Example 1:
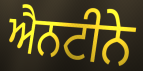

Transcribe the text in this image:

ਐਨਟੀਨੇ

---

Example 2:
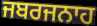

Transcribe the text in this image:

ਜਬਰਜਨਾਹ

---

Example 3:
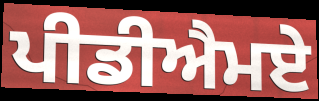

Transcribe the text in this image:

ਪੀਡੀਐਮਏ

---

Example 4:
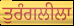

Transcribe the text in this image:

ਤੁਰੰਗਲੀਲਾ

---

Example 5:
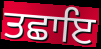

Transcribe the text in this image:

ਤਛਾਇ